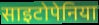
साइटोपेनिया